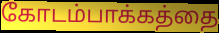
கோடம்பாக்கத்தை